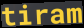
tiram